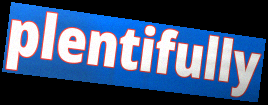
plentifully